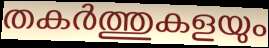
തകർത്തുകളയും